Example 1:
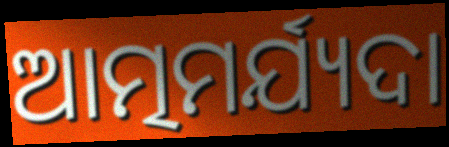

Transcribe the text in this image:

ଆତ୍ମମର୍ଯ୍ୟଦା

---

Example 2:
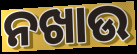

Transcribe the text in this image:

ନଖାଉ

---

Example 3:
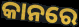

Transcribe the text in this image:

କାନରେ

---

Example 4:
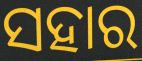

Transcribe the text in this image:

ସହାର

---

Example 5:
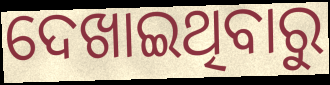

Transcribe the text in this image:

ଦେଖାଇଥିବାରୁ